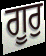
ਗੂਰੁ